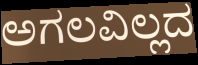
ಅಗಲವಿಲ್ಲದ